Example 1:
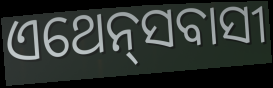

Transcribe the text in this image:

ଏଥେନ୍‌ସବାସୀ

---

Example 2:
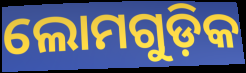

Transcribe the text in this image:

ଲୋମଗୁଡ଼ିକ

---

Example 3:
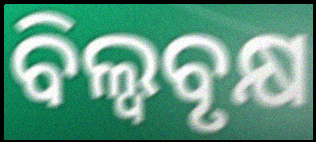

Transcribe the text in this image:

ବିଲ୍ୱବୃକ୍ଷ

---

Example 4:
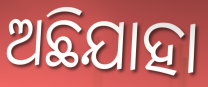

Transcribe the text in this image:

ଅଛିଯାହା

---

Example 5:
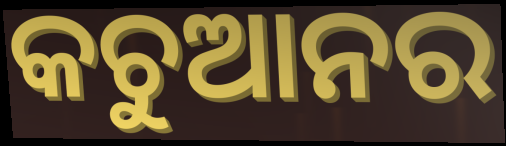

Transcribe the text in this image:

କଚୁଆନର